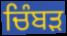
ਚਿੰਬੜ